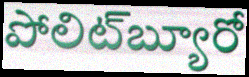
పోలిట్‌బ్యూరో